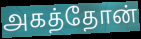
அகத்தோன்